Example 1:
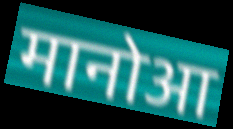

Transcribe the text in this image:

मानोआ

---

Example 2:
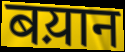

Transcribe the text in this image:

बय़ान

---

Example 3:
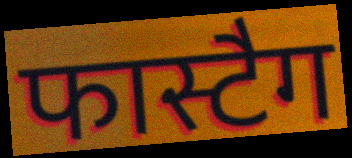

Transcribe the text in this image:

फास्‍टैग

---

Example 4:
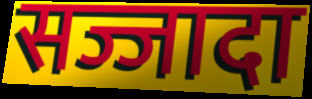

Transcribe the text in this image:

सज्जादा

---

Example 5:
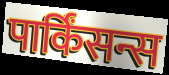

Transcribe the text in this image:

पार्किंसन्स